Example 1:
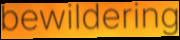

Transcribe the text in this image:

bewildering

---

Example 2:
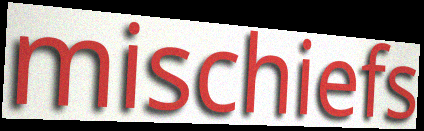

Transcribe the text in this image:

mischiefs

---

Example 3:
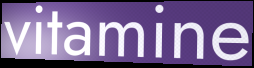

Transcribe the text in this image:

vitamine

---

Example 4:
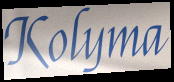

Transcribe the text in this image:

Kolyma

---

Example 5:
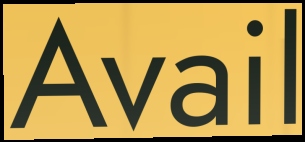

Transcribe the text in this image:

Avail